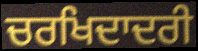
ਚਰਖਿਦਾਦਰੀ